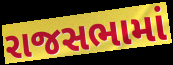
રાજસભામાં